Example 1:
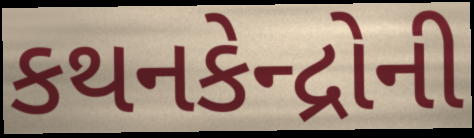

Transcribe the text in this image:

કથનકેન્દ્રોની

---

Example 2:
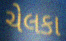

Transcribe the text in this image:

ચેલકા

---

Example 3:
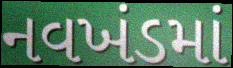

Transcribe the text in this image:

નવખંડમાં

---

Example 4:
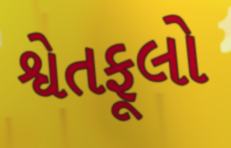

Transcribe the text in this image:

શ્વેતફૂલો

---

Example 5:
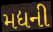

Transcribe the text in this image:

મદ્યની